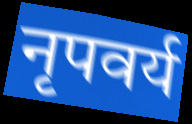
नृपवर्य